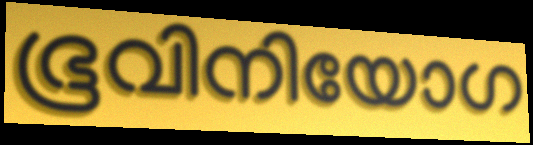
ഭൂവിനിയോഗ